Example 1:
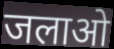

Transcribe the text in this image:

जलाओ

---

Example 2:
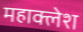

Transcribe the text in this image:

महाक्लेश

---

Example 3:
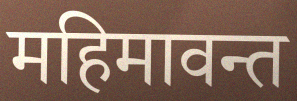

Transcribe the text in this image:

महिमावन्त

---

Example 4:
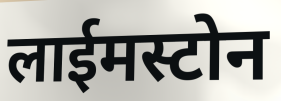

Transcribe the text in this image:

लाईमस्टोन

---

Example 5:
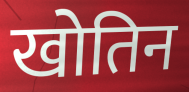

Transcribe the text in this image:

खोतिन